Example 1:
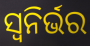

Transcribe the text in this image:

ସ୍ୱନିର୍ଭର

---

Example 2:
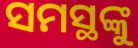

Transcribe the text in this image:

ସମସ୍ଥଙ୍କୁ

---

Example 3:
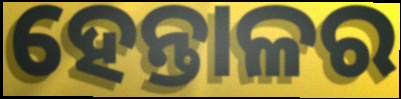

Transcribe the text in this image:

ହେନ୍ତାଳର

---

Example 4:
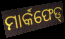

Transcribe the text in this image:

ମାର୍କଫେଡ୍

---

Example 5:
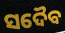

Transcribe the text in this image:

ସଦୈବ